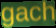
gach